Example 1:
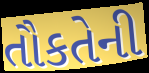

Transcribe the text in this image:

તૌકતેની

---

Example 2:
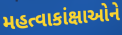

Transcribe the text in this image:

મહત્વાકાંક્ષાઓને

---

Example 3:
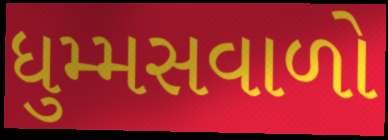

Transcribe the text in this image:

ધુમ્મસવાળો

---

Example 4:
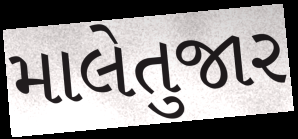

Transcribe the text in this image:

માલેતુજાર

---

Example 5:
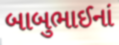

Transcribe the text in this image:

બાબુભાઈનાં